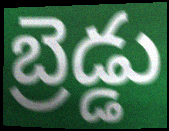
బ్రెడ్డు